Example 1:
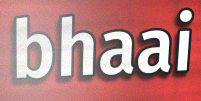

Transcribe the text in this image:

bhaai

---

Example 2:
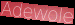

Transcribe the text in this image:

Adewole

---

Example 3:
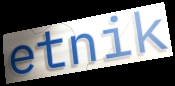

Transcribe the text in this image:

etnik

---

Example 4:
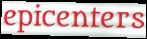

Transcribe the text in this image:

epicenters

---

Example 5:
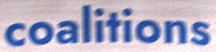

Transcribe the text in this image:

coalitions